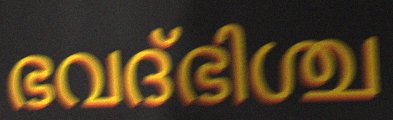
ഭവദ്ഭിശ്ച